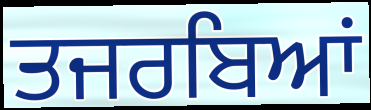
ਤਜਰਬਿਆਂ